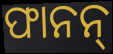
ଫାନନ୍